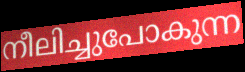
നീലിച്ചുപോകുന്ന